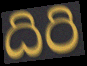
దిరి